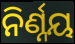
ନିର୍ଣ୍ନୟ